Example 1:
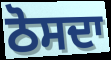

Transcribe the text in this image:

ਠੋਸਦਾ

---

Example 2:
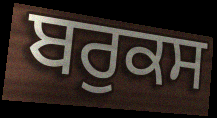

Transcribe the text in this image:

ਬਰੁਕਸ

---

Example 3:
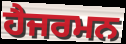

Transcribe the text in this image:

ਹੈਜਰਮਨ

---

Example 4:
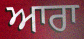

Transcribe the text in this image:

ਆਰਾ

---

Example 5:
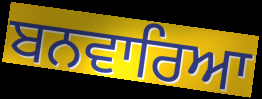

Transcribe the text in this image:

ਬਨਵਾਰਿਆ